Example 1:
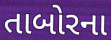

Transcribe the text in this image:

તાબોરના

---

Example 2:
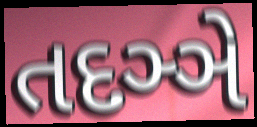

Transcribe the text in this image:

તદઞ્ઞે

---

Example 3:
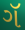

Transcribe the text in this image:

ગૅ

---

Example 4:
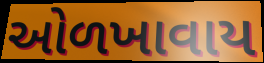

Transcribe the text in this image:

ઓળખાવાય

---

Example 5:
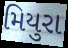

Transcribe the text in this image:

મિયુરા